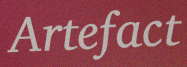
Artefact